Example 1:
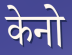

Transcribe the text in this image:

केनो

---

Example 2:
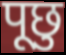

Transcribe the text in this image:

पूछु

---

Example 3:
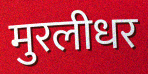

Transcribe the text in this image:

मुरलीधर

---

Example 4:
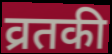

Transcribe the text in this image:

व्रतकी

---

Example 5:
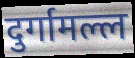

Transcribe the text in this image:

दुर्गामल्ल